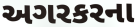
અગરકરના